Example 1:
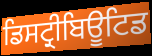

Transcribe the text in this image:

ਡਿਸਟ੍ਰੀਬਿਊਟਿਡ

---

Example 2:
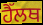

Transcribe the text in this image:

ਹੈੱਲਥ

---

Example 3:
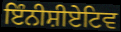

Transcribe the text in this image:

ਇੰਨੀਸ਼ੀਏਟਿਵ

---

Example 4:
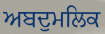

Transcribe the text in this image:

ਅਬਦੁਮਲਿਕ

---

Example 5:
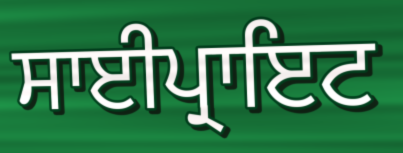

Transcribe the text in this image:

ਸਾਈਪ੍ਰਾਇਟ